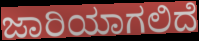
ಜಾರಿಯಾಗಲಿದೆ